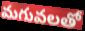
మగువలతో